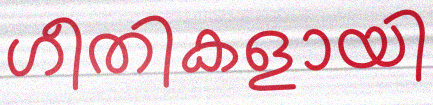
ഗീതികളായി